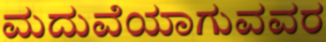
ಮದುವೆಯಾಗುವವರ